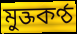
মুক্তকণ্ঠ